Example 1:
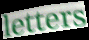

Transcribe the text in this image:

letters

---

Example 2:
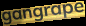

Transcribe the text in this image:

gangrape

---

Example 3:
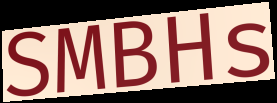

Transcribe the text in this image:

SMBHs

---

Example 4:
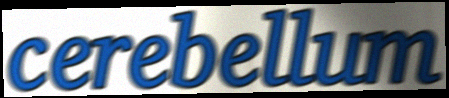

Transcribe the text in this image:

cerebellum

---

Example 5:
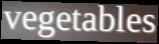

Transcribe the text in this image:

vegetables